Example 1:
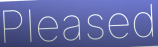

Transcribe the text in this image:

Pleased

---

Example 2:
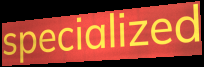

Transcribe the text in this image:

specialized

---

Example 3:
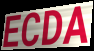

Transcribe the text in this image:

ECDA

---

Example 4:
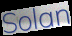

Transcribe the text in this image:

Solan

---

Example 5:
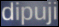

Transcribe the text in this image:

dipuji